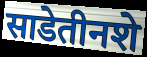
साडेतीनशे